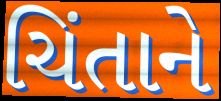
ચિંતાને